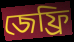
জেফ্রি